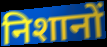
निशानों